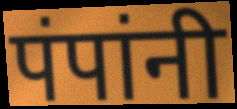
पंपांनी